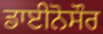
ਡਾਈਨੋਸੌਰ